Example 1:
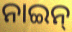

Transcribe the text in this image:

ନାଇନ୍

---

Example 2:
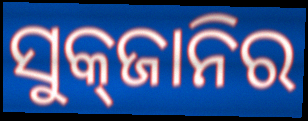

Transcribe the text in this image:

ସୁକ୍‌ଜାନିର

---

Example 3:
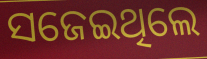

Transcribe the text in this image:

ସଜେଇଥିଲେ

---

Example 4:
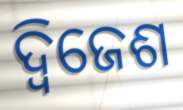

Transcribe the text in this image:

ଦ୍ୱିଜେଶ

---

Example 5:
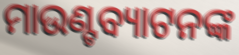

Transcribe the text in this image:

ମାଉଣ୍ଟବ୍ୟାଟନଙ୍କ